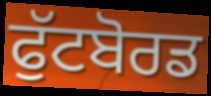
ਫੁੱਟਬੋਰਡ